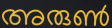
അരുൺ